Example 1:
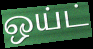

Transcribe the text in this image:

ஒய்ட்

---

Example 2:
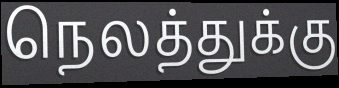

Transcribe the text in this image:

நெலத்துக்கு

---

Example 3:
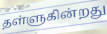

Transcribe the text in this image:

தள்ளுகின்றது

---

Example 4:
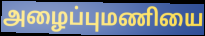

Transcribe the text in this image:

அழைப்புமணியை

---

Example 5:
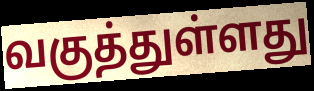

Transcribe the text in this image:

வகுத்துள்ளது